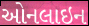
ઓનલાઇન